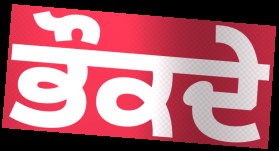
ਭੌਕਦੇ